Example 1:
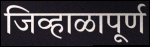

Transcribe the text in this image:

जिव्हाळापूर्ण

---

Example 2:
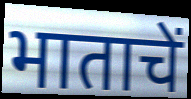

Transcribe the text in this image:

भाताचें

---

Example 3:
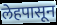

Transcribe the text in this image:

लेहपासून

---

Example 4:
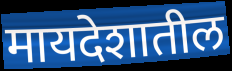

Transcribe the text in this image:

मायदेशातील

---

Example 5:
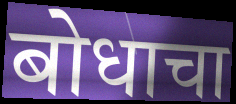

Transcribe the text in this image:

बोधाचा